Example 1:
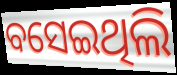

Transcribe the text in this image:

ବସେଇଥିଲି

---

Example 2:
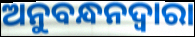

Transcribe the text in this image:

ଅନୁବନ୍ଧନଦ୍ୱାରା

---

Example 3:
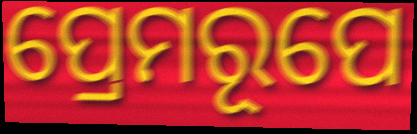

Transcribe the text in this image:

ପ୍ରେମରୂପେ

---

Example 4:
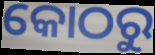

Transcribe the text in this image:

କୋଠରୁ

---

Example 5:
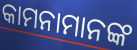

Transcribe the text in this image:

କାମନାମାନଙ୍କ